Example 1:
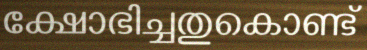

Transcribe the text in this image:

ക്ഷോഭിച്ചതുകൊണ്ട്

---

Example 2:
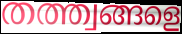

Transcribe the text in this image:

തത്ത്വങ്ങളെ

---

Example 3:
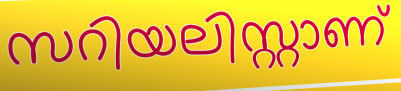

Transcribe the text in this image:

സറിയലിസ്റ്റാണ്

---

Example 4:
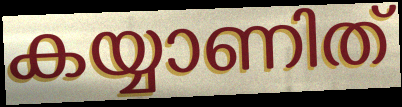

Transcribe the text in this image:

കയ്യാണിത്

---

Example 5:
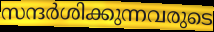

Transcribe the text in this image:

സന്ദർശിക്കുന്നവരുടെ